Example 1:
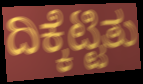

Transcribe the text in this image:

ದಿಕ್ಕೆಟ್ಟಿತು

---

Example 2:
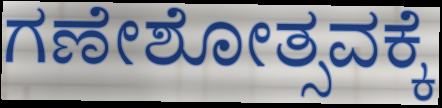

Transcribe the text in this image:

ಗಣೇಶೋತ್ಸವಕ್ಕೆ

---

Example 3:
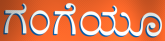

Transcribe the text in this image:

ಗಂಗೆಯೂ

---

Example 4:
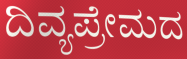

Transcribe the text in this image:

ದಿವ್ಯಪ್ರೇಮದ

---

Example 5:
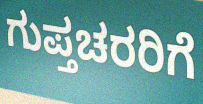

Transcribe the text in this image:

ಗುಪ್ತಚರರಿಗೆ